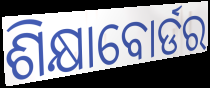
ଶିକ୍ଷାବୋର୍ଡର